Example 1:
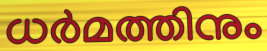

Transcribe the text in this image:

ധർമത്തിനും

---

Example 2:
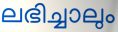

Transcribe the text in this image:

ലഭിച്ചാലും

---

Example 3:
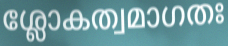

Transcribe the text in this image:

ശ്ലോകത്വമാഗതഃ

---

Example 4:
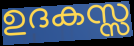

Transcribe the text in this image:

ഉദകസ്സ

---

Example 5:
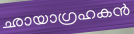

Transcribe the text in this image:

ഛായാഗ്രഹകൻ